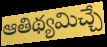
ఆతిథ్యమిచ్చే